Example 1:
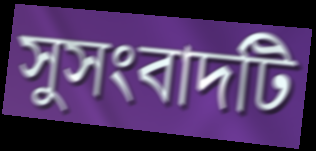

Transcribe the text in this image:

সুসংবাদটি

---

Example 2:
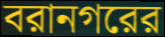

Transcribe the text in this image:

বরানগরের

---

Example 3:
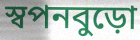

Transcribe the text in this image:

স্বপনবুড়ো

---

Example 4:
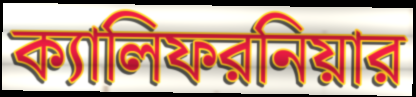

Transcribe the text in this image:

ক্যালিফরনিয়ার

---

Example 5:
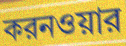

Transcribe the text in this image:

করনওয়ার